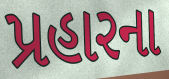
પ્રહારના